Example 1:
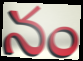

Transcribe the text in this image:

నం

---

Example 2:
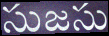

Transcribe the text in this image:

సుజసు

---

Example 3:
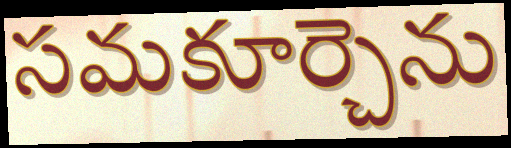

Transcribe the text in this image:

సమకూర్చెను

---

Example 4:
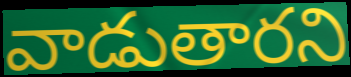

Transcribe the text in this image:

వాడుతారని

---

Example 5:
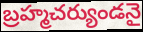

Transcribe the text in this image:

బ్రహ్మచర్యుండనై